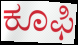
ಕೂಫಿ